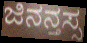
ಜಿನನ್ತಸ್ಸ